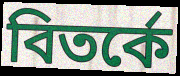
বিতর্কে